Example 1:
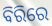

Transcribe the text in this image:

ବିରିରେ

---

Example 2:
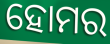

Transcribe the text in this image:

ହୋମର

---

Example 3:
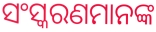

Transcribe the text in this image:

ସଂସ୍କରଣମାନଙ୍କ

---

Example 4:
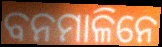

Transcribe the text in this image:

ବନମାଳିନେ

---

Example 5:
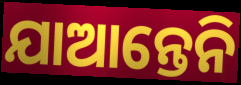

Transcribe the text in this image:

ଯାଆନ୍ତେନି